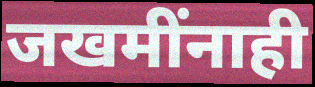
जखमींनाही